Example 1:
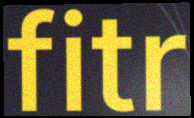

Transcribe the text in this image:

fitr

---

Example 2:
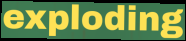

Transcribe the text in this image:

exploding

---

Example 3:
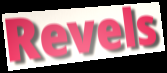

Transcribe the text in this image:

Revels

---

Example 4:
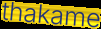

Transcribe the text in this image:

thakame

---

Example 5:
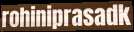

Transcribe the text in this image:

rohiniprasadk